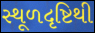
સ્થૂળદૃષ્ટિથી